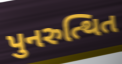
પુનરુત્થિત